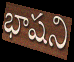
భాషని